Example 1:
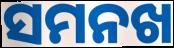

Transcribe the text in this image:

ସମନଖ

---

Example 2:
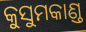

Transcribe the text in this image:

କୁସୁମକାଣ୍ଡ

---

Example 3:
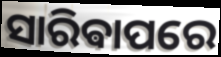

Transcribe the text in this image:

ସାରିଵାପରେ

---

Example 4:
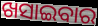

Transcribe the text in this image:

ଖସାଇବାର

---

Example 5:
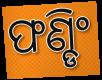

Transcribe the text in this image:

ଫଣ୍ଡିଂ